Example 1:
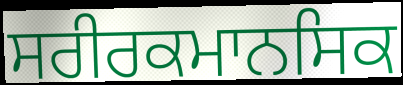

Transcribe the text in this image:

ਸਰੀਰਕਮਾਨਸਿਕ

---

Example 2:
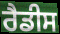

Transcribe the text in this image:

ਰੈਡੀਸ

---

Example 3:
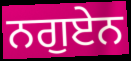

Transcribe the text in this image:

ਨਗੁਏਨ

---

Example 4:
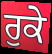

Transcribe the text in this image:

ਰੁਕੇ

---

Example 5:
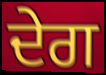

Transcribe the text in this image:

ਦੇਗ